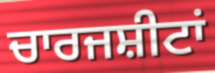
ਚਾਰਜਸ਼ੀਟਾਂ